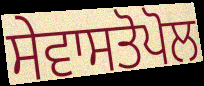
ਸੇਵਾਸਤੋਪੋਲ